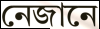
নেজানে